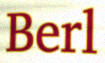
Berl